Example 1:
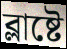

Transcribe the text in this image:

ব্লাষ্টে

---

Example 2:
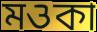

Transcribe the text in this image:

মওকা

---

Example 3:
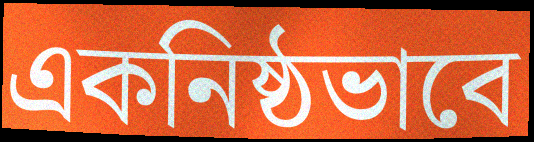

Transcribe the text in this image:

একনিষ্ঠভাবে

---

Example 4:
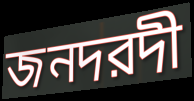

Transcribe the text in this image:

জনদরদী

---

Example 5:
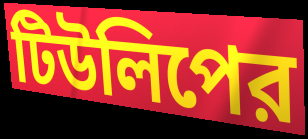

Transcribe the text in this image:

টিউলিপের